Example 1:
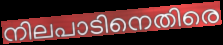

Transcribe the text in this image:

നിലപാടിനെതിരെ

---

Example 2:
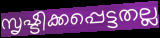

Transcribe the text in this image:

സൃഷ്ടിക്കപ്പെട്ടതല്ല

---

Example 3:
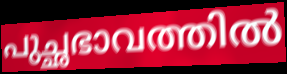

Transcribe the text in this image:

പുച്ഛഭാവത്തിൽ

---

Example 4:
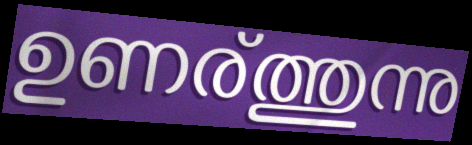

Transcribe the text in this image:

ഉണര്ത്തുന്നു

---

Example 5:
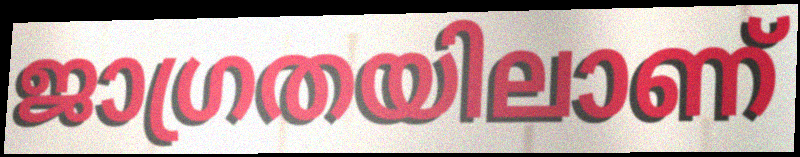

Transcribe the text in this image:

ജാഗ്രതയിലാണ്